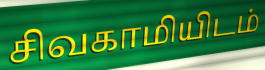
சிவகாமியிடம்